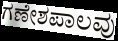
ಗಣೇಶಪಾಲವು